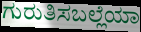
ಗುರುತಿಸಬಲ್ಲೆಯಾ